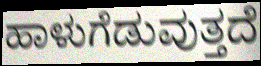
ಹಾಳುಗೆಡುವುತ್ತದೆ